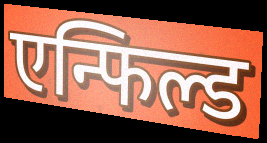
एन्फिल्ड